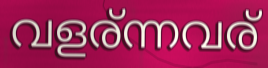
വളര്ന്നവര്